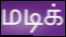
மடிக்